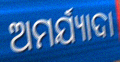
ଅମର୍ଯ୍ୟାଦା